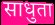
साधुता